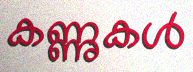
കണ്ണുകൾ